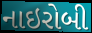
નાઇરોબી